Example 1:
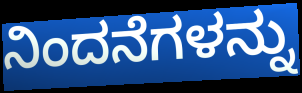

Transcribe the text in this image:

ನಿಂದನೆಗಳನ್ನು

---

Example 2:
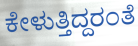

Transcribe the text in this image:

ಕೇಳುತ್ತಿದ್ದರಂತೆ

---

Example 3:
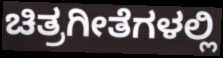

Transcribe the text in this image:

ಚಿತ್ರಗೀತೆಗಳಲ್ಲಿ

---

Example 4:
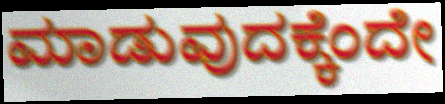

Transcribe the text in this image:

ಮಾಡುವುದಕ್ಕೆಂದೇ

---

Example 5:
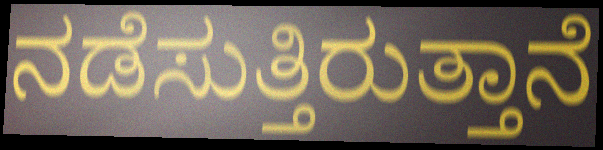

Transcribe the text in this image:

ನಡೆಸುತ್ತಿರುತ್ತಾನೆ